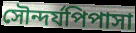
সৌন্দৰ্যপিপাসা